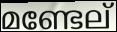
മണ്ടേല്